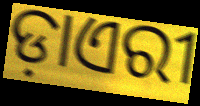
ଡ଼ାଏରୀ